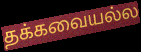
தக்கவையல்ல